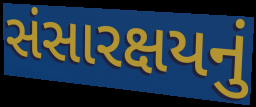
સંસારક્ષયનું